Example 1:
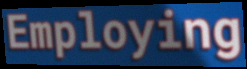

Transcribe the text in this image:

Employing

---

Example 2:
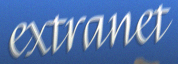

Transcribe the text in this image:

extranet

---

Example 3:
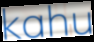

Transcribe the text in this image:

kahu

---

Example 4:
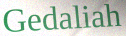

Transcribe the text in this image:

Gedaliah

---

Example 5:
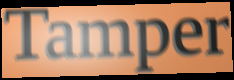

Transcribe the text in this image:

Tamper